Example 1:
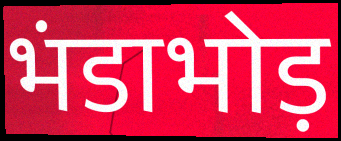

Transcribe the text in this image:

भंडाभोड़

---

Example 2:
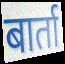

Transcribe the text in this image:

बार्ता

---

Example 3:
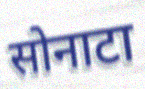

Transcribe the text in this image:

सोनाटा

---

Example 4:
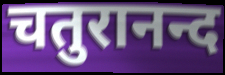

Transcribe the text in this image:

चतुरानन्द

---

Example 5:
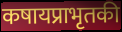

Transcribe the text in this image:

कषायप्राभृतकी